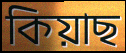
কিয়াছ